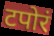
टपोरं